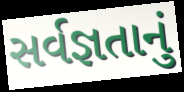
સર્વજ્ઞતાનું